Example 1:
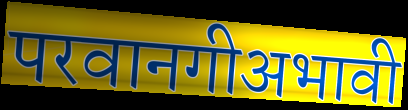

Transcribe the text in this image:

परवानगीअभावी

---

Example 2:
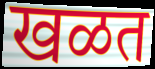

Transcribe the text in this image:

खळत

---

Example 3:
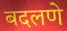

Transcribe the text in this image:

बदलणे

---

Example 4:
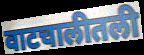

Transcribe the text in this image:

वाटचालीतली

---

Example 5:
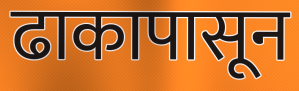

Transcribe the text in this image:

ढाकापासून